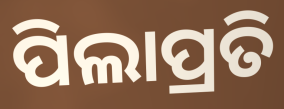
ପିଲାପ୍ରତି